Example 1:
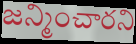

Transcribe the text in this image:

జన్మించారని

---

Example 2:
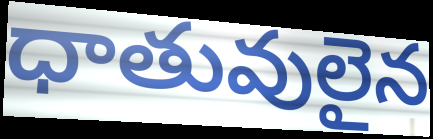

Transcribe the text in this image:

ధాతువులైన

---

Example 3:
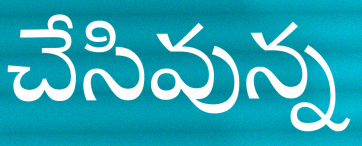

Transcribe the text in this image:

చేసివున్న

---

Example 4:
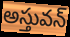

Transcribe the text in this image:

అస్తువన్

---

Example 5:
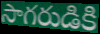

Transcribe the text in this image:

సాగరుడికి